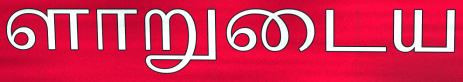
ளாறுடைய